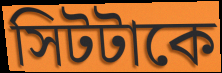
সিটটাকে